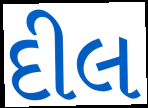
દીલ